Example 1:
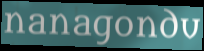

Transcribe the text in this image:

nanagondu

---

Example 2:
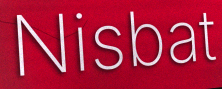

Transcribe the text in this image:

Nisbat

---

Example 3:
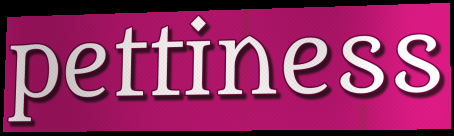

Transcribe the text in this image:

pettiness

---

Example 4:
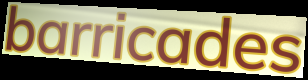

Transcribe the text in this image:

barricades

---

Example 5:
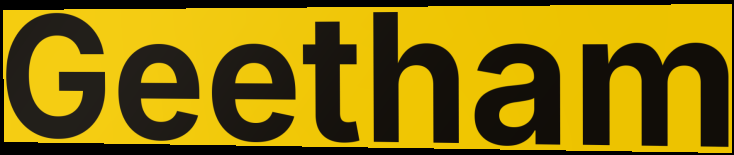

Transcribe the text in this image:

Geetham